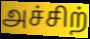
அச்சிற்